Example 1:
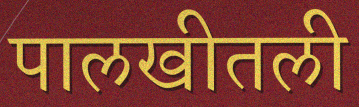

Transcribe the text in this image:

पालखीतली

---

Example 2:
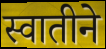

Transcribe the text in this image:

स्वातीने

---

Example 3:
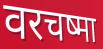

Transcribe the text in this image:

वरचष्मा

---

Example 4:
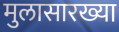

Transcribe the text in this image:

मुलासारख्या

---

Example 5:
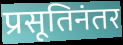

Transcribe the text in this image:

प्रसूतिनंतर